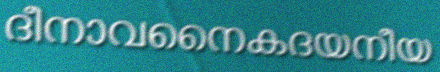
ദീനാവനൈകദയനീയ